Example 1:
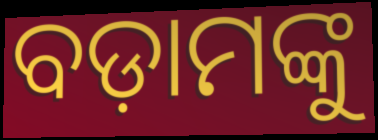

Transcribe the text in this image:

ବଡ଼ାମଙ୍କୁ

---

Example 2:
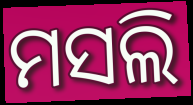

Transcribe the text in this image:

ମସଲି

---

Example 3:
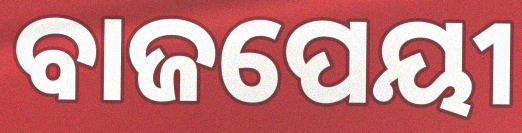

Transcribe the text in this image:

ବାଜପେୟୀ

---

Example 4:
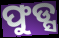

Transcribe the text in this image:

ଫୁଡ୍ସ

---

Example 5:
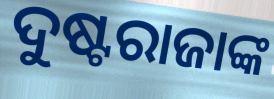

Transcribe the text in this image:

ଦୁଷ୍ଟରାଜାଙ୍କ